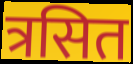
त्रसित